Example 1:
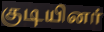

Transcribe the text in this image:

குடியினர்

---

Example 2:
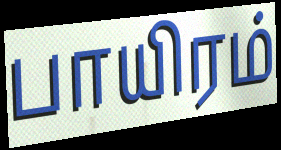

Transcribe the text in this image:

பாயிரம்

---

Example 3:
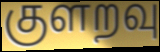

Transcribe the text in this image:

குளறவு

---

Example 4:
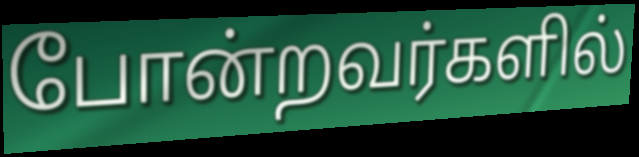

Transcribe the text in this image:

போன்றவர்களில்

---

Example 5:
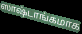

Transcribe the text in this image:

ஸாஷ்டாங்கமாக